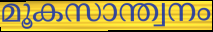
മൂകസാന്ത്വനം